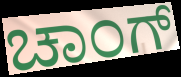
ಚಾಂಗ್